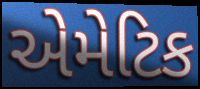
એમેટિક